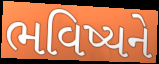
ભવિષ્યને